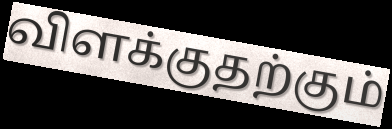
விளக்குதற்கும்